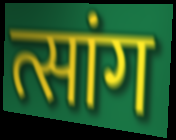
त्सांग